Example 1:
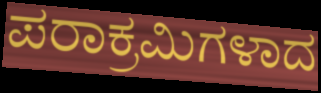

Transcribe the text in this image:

ಪರಾಕ್ರಮಿಗಳಾದ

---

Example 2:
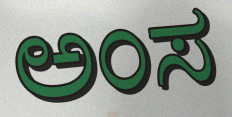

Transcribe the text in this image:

ಅಂಸ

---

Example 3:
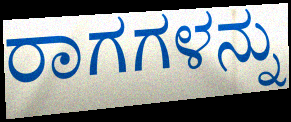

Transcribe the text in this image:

ರಾಗಗಳನ್ನು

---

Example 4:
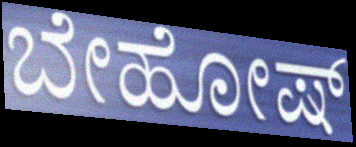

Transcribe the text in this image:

ಬೇಹೋಷ್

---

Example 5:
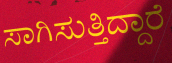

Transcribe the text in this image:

ಸಾಗಿಸುತ್ತಿದ್ದಾರೆ